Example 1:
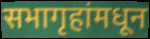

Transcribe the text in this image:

सभागृहांमधून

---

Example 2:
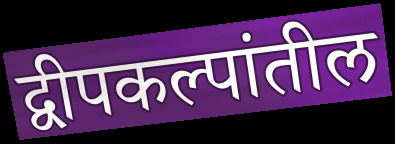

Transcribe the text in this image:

द्वीपकल्पांतील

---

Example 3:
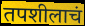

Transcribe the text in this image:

तपशीलाचं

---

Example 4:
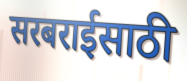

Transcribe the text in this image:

सरबराईसाठी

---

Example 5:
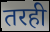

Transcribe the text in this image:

तरही